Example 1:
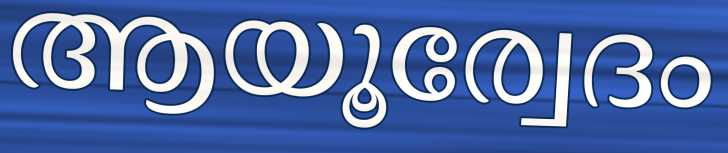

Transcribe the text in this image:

ആയൂര്വേദം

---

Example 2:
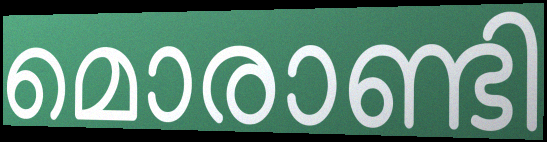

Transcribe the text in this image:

മൊരാണ്ടി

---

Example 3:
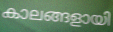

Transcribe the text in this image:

കാലങ്ങളായി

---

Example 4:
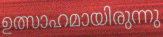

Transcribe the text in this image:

ഉത്സാഹമായിരുന്നു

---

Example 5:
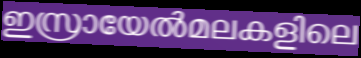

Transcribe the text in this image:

ഇസ്രായേൽമലകളിലെ